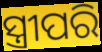
ସ୍ତ୍ରୀପରି